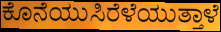
ಕೊನೆಯುಸಿರೆಳೆಯುತ್ತಾಳೆ